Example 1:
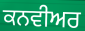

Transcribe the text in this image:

ਕਨਵੀਅਰ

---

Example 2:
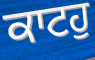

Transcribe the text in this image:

ਕਾਟਹੁ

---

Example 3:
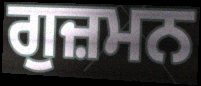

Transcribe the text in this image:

ਗੁਜ਼ਮਨ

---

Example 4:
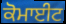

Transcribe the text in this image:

ਕੋਮਾਈਟ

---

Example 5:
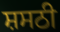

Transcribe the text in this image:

ਸ਼ਸਠੀ